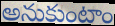
అనుకుంటాం